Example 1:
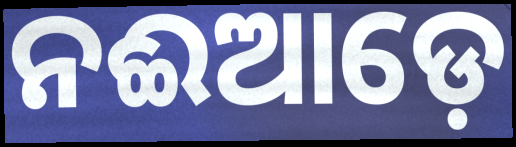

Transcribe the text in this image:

ନଈଆଡ଼େ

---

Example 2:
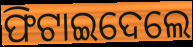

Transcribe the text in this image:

ଫିଟାଇଦେଲେ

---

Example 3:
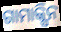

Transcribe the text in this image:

ଗାମାକ୍ସିନ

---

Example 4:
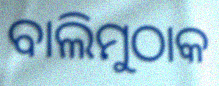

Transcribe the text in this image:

ବାଲିମୁଠାକ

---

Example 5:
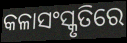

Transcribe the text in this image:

କଳାସଂସ୍କୃତିରେ